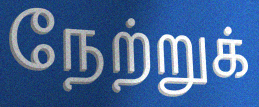
நேற்றுக்